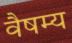
वैषम्‍य